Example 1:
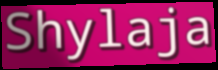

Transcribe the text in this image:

Shylaja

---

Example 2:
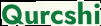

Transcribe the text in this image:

Qurcshi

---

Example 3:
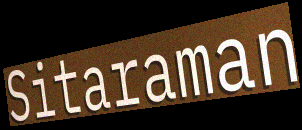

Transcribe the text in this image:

Sitaraman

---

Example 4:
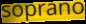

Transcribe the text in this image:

soprano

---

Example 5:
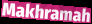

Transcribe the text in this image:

Makhramah